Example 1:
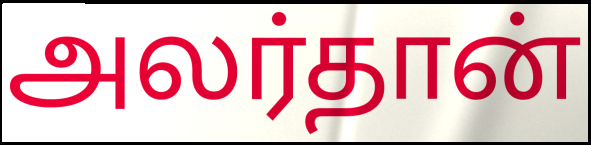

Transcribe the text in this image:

அலர்தான்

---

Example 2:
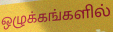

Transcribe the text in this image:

ஒழுக்கங்களில்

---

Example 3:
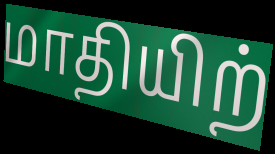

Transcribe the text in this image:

மாதியிற்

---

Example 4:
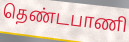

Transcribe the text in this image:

தெண்டபாணி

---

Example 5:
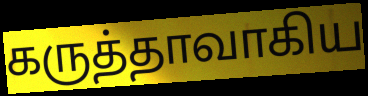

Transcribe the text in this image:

கருத்தாவாகிய